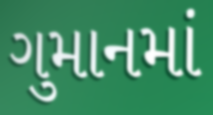
ગુમાનમાં